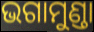
ଭଗାମୁଣ୍ଡା